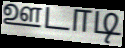
ஊடாடி